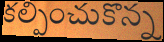
కల్పించుకొన్న